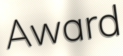
Award